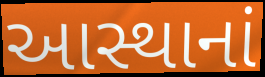
આસ્થાનાં